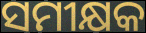
ସମୀକ୍ଷକ